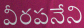
వీరపనేని